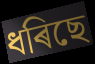
ধৰিছে